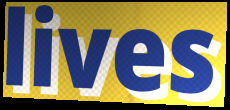
lives